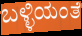
ಬಳ್ಳಿಯಂತೆ